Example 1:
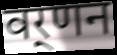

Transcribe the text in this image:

वर्णन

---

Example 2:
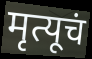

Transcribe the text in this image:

मृत्यूचं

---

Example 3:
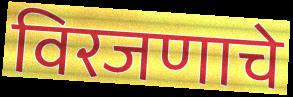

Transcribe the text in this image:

विरजणाचे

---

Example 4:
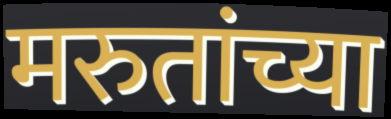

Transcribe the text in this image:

मरुतांच्या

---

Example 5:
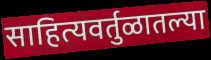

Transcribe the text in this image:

साहित्यवर्तुळातल्या